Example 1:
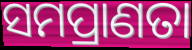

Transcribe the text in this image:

ସମପ୍ରାଣତା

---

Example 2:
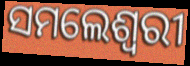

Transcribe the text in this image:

ସମଲେଶ୍ୱରୀ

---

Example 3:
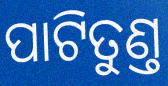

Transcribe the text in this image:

ପାଟିତୁଣ୍ତ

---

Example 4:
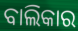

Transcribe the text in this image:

ବାଲିକାର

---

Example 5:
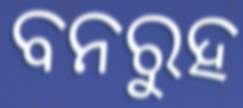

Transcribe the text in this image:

ବନରୁହ